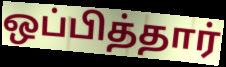
ஒப்பித்தார்